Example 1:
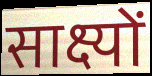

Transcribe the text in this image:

साक्ष्यों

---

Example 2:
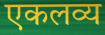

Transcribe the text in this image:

एकलव्य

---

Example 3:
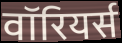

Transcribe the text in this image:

वॉरियर्स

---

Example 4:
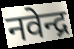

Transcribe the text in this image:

नवेन्द्र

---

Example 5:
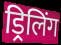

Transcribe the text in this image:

ड्रिलिंग